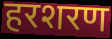
हरशरण